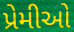
પ્રેમીઓ